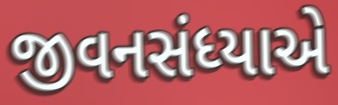
જીવનસંધ્યાએ